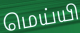
மெய்யி